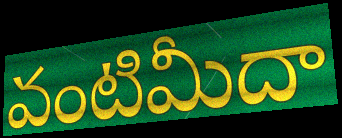
వంటిమీదా